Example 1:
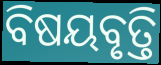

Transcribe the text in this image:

ବିଷୟବୃତ୍ତି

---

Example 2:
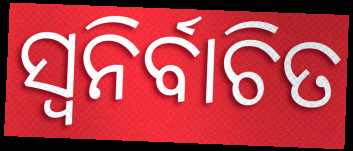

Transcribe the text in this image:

ସ୍ବନିର୍ବାଚିତ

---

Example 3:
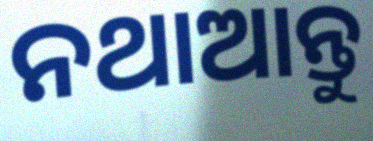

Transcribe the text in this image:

ନଥାଆନ୍ତୁ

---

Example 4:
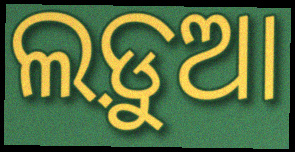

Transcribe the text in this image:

ଲଡ଼ୁଆ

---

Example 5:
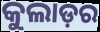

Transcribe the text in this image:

କୁଲାଡ଼ର